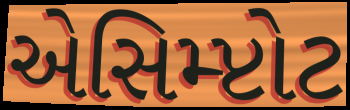
એસિમ્પ્ટોટ